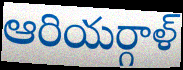
ఆరియర్గాళ్